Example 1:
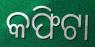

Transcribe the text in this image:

କଫିଟା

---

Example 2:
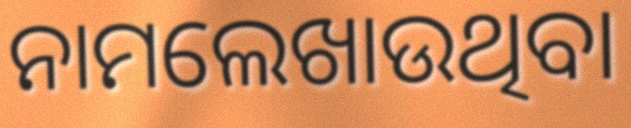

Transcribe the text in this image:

ନାମଲେଖାଉଥିବା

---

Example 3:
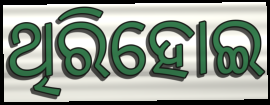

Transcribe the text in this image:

ଥିରିହୋଇ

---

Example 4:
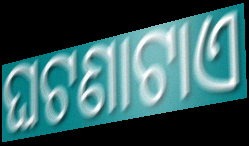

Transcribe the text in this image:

ଘଟଣାଟାଏ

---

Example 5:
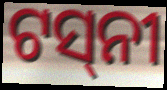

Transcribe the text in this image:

ଟସ୍‌ନୀ